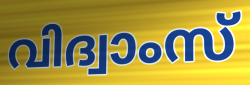
വിദ്വാംസ്